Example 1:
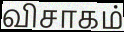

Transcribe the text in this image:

விசாகம்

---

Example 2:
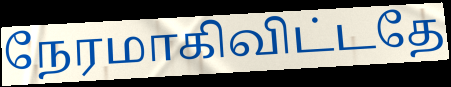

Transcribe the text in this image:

நேரமாகிவிட்டதே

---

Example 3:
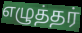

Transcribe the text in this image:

எழுத்தர்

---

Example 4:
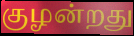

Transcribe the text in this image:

குழன்றது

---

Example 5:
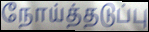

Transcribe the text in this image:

நோய்த்தடுப்பு